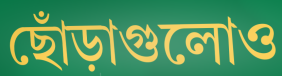
ছোঁড়াগুলোও